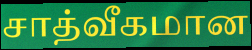
சாத்வீகமான